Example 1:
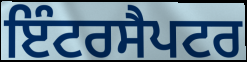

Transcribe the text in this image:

ਇੰਟਰਸੈਪਟਰ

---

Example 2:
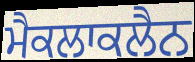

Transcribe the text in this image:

ਮੈਕਲਾਕਲੈਨ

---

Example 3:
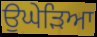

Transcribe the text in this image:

ਉਘੇੜਿਆ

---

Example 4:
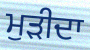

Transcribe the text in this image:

ਮੁੜੀਦਾ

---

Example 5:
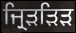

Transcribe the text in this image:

ਜ੍ਰਿੜੜਿੜ